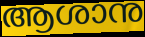
ആശാനു